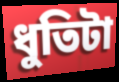
ধুতিটা